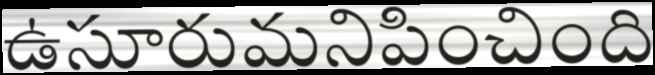
ఉసూరుమనిపించింది